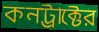
কনট্রাক্টের